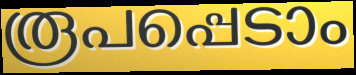
രൂപപ്പെടാം